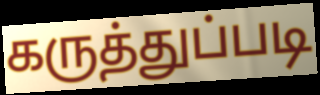
கருத்துப்படி